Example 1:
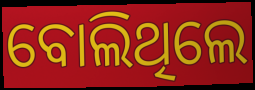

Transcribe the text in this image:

ବୋଲିଥିଲେ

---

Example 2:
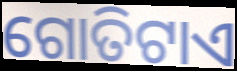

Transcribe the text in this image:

ଗୋତିଟାଏ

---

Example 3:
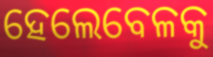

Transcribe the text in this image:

ହେଲେବେଳକୁ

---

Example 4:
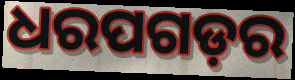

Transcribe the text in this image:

ଧରପଗଡ଼ର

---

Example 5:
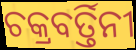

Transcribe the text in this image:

ଚକ୍ରବର୍ତ୍ତିନୀ